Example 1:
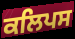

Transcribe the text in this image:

ਕਲਿਪਸ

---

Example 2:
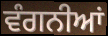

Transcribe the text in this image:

ਵੰਗਨੀਆਂ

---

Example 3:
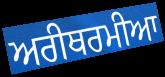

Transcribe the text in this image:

ਅਰੀਥਰਮੀਆ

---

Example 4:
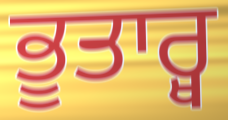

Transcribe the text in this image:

ਭੂਤਾਰ੍ਥ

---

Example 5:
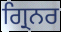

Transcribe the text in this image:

ਗ੍ਰਿਨਰ